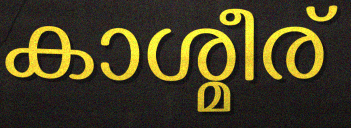
കാശ്മീര്